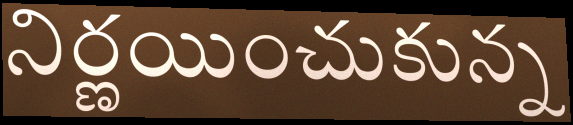
నిర్ణయించుకున్న